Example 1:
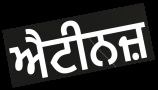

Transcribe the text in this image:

ਐਟੀਨਜ਼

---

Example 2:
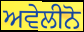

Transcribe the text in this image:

ਅਵੇਲੀਨੋ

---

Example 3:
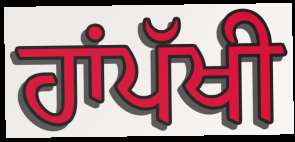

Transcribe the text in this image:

ਹਾਂਪੱਖੀ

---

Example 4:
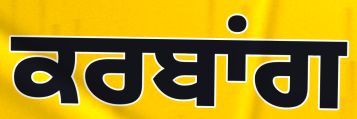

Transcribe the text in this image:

ਕਰਬਾਂਗ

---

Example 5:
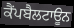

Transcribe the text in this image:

ਕੈਂਪਬੈਲਟਾਊਨ